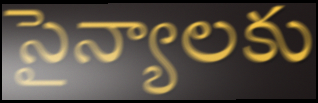
సైన్యాలకు